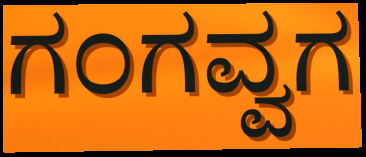
ಗಂಗವ್ವಗ